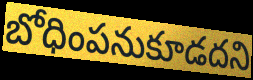
బోధింపనుకూడదని